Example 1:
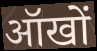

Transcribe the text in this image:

ऑखों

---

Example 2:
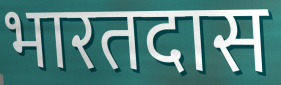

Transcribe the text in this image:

भारतदास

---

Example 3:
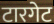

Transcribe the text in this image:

टारगेट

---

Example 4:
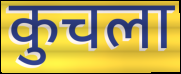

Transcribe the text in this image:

कुचला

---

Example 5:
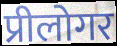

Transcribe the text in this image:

प्रीलोगर